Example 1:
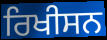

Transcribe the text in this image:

ਰਿਖੀਸਨ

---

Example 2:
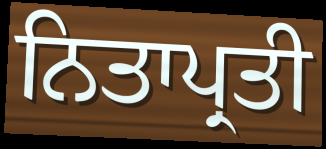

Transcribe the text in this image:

ਨਿਤਾਪ੍ਰਤੀ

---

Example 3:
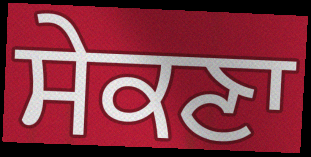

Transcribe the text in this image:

ਸੇਕਣਾ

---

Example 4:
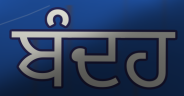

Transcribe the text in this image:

ਬੰਦਹ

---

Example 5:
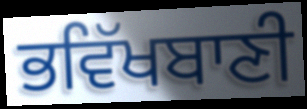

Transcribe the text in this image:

ਭਵਿੱਖਬਾਣੀ